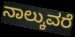
ನಾಲ್ಕುವರೆ